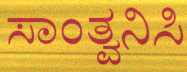
ಸಾಂತ್ವನಿಸಿ